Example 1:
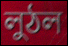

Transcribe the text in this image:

লুঠল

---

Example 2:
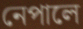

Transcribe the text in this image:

নেপালে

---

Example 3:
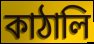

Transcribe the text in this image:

কাঠালি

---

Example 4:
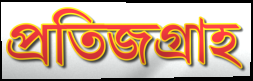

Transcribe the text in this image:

প্রতিজগ্রাহ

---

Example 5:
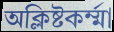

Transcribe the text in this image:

অক্লিষ্টকর্ম্মা